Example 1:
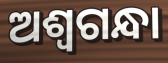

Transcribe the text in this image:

ଅଶ୍ୱଗନ୍ଧା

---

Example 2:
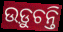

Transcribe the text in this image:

ଉଡ଼ୁଚନ୍ତି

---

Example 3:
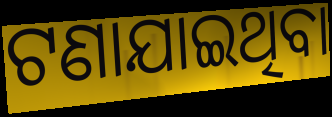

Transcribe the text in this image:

ଟଣାଯାଇଥିବା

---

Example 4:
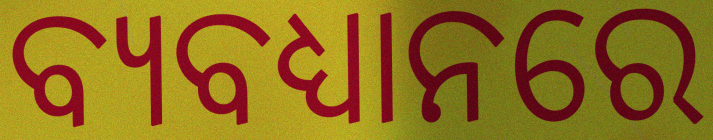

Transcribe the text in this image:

ବ୍ୟବଧ୍ୟାନରେ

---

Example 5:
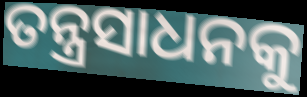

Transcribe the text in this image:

ତନ୍ତ୍ରସାଧନକୁ